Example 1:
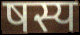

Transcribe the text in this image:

षस्य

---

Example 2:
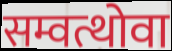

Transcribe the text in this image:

सम्वत्थोवा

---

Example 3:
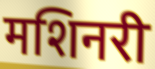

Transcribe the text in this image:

मशिनरी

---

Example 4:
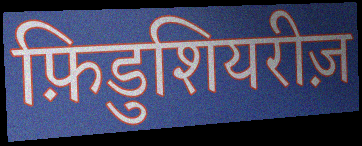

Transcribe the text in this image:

फ़िडुशियरीज़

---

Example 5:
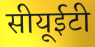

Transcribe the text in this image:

सीयूईटी